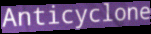
Anticyclone